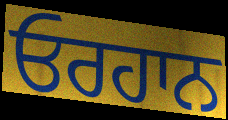
ਓਰਹਾਨ